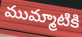
ముమ్మాటికి